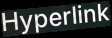
Hyperlink